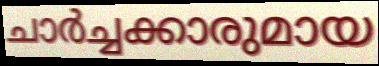
ചാർച്ചക്കാരുമായ